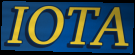
IOTA